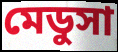
মেডুসা